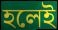
হলেই